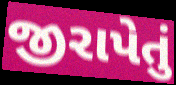
જીરાપેતું